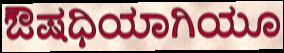
ಔಷಧಿಯಾಗಿಯೂ